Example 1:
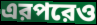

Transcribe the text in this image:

এরপরেও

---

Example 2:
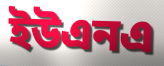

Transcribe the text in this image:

ইউএনএ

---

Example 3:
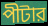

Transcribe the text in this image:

পীটার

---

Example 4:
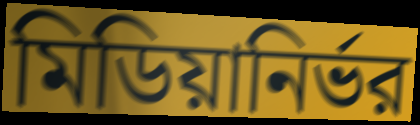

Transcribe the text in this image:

মিডিয়ানির্ভর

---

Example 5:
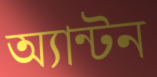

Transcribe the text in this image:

অ্যান্টন